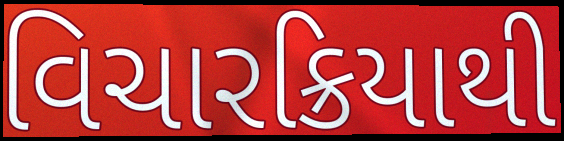
વિચારક્રિયાથી